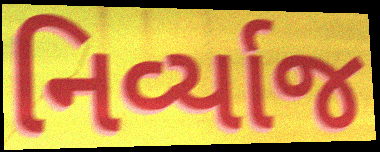
નિર્વ્યાજ